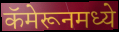
कॅमेरूनमध्ये